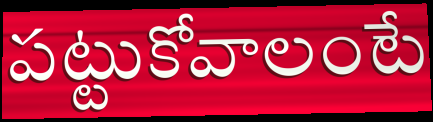
పట్టుకోవాలంటే